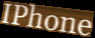
IPhone